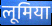
लूमिया